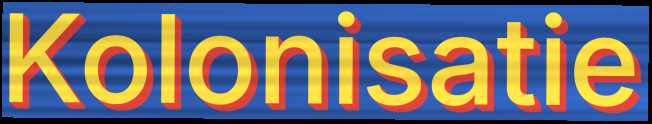
Kolonisatie